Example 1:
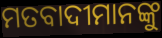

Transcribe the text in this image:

ମତବାଦୀମାନଙ୍କୁ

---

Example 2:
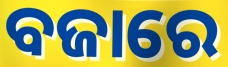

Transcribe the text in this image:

ବଜାରେ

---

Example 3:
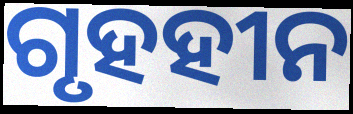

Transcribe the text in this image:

ଗୃହହୀନ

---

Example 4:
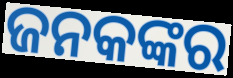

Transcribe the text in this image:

ଜନକଙ୍କର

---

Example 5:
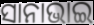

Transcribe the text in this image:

ସାନାଭାଇ